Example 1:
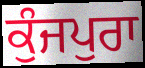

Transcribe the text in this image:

ਕੁੰਜਪੁਰਾ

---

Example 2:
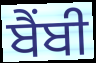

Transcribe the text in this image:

ਬੈਂਬੀ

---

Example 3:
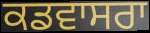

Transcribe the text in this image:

ਕਡਵਾਸਰਾ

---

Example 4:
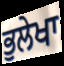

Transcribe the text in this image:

ਭੁਲੇਖਾ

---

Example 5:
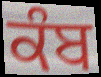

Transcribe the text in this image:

ਕੰਬ